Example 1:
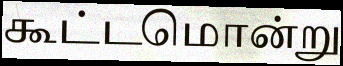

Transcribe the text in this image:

கூட்டமொன்று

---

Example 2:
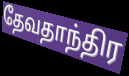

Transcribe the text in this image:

தேவதாந்திர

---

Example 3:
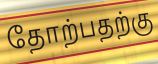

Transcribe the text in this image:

தோற்பதற்கு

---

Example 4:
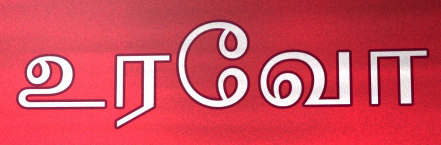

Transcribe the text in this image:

உரவோ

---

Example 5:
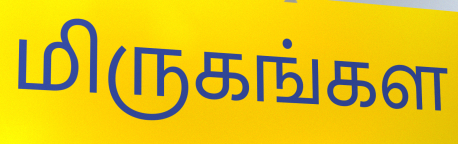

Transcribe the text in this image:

மிருகங்கள